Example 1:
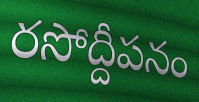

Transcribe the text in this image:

రసోద్దీపనం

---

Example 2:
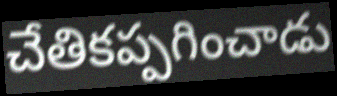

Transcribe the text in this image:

చేతికప్పగించాడు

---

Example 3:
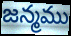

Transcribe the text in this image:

జన్మము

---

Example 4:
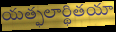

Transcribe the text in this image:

యత్ఫలార్థితయా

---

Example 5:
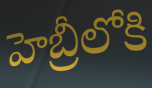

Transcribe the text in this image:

హెబ్రీలోకి